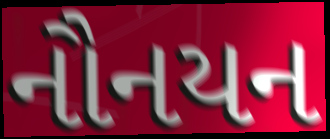
નૌનયન